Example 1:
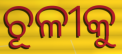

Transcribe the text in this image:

ଚୂଳୀକୁ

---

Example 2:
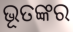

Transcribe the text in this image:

ଭୂତଙ୍କର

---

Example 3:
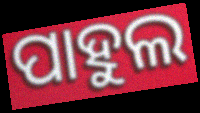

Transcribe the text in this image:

ପାହୁଲ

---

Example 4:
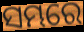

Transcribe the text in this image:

ସମ୍ଭରେ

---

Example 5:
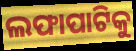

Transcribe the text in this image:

ଲଫାପାଟିକୁ